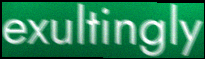
exultingly